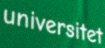
universitet